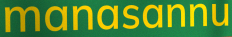
manasannu